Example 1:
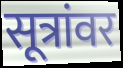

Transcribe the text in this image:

सूत्रांवर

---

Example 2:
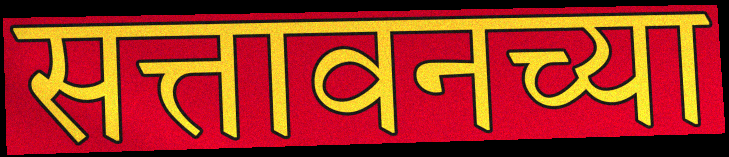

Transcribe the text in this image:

सत्तावनच्या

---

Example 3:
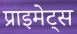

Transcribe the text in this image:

प्राइमेट्स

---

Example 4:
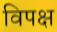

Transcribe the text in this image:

विपक्ष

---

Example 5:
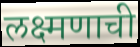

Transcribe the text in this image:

लक्ष्मणाची